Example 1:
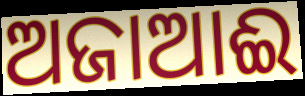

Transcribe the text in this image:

ଅଜାଆଈ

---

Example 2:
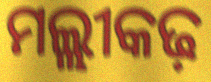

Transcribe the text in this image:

ମଲ୍ଲୀକଢ଼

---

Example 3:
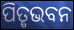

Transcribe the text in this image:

ପିତୃଭବନ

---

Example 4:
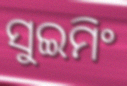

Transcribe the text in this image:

ସୁଇମିଂ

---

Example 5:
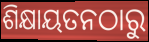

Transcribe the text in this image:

ଶିକ୍ଷାୟତନଠାରୁ